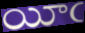
యీఁ